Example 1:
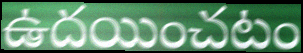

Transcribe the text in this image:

ఉదయించటం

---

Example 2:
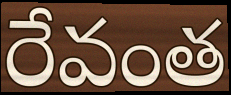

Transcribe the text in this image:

రేవంత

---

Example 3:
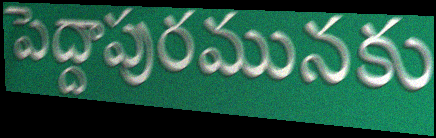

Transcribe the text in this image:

పెద్దాపురమునకు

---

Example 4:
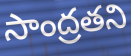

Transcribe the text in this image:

సాంద్రతని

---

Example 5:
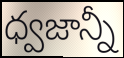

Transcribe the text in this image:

ధ్వజాన్నీ